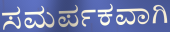
ಸಮರ್ಪಕವಾಗಿ